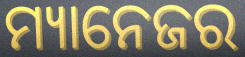
ମ୍ୟାନେଜର